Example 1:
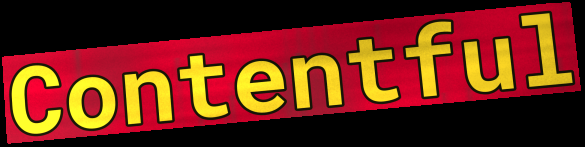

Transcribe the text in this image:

Contentful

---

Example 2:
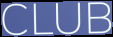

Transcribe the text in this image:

CLUB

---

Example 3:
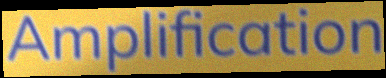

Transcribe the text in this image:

Amplification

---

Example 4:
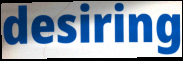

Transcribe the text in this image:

desiring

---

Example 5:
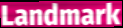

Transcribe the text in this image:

Landmark